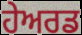
ਹੇਅਰਡ